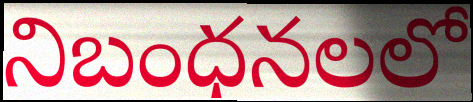
నిబంధనలలో